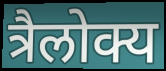
त्रैलोक्य